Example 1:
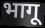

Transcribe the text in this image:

भागू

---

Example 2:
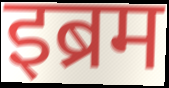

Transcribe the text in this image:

इब्रम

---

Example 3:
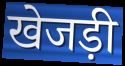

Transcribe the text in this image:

खेजड़ी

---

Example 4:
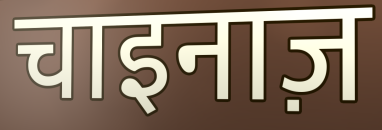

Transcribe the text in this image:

चाइनाज़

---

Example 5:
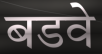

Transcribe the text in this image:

बडवे